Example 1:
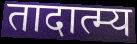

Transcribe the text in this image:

तादात्म्य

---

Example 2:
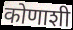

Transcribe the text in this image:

कोणाशी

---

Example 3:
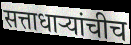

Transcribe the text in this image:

सत्ताधाऱ्यांचीच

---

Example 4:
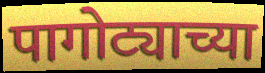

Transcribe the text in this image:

पागोट्याच्या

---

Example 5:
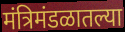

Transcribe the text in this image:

मंत्रिमंडळातल्या